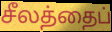
சீலத்தைப்